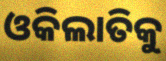
ଓକିଲାତିକୁ